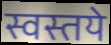
स्वस्तये